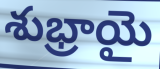
శుభ్రాయై